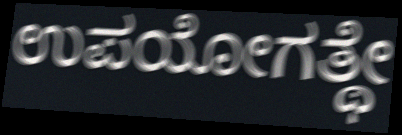
ಉಪಯೋಗತ್ಥೇ